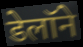
डेलॉने